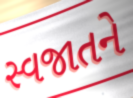
સ્વજાતને